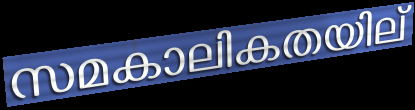
സമകാലികതയില്